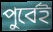
পুর্বেই